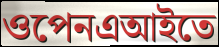
ওপেনএআইতে